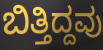
ಬಿತ್ತಿದ್ದವು